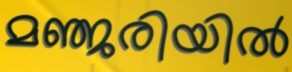
മഞ്ജരിയിൽ